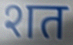
शत